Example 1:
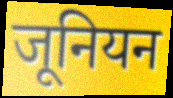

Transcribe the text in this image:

जूनियन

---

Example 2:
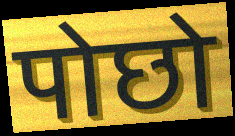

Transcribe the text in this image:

पोछो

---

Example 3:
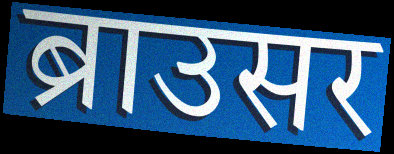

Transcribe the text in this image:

ब्राउसर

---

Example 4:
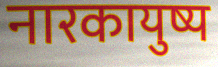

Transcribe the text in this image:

नारकायुष्य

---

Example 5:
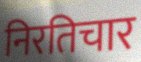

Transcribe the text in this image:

निरतिचार